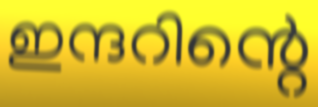
ഇന്ദറിന്റെ